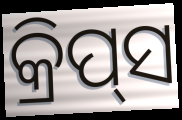
କ୍ରିପ୍‍ସ